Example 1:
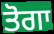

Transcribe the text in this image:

ਤੋਗਾ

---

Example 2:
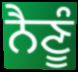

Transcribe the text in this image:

ਨੈਣੂੰ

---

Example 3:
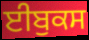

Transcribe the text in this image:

ਈਬੁਕਸ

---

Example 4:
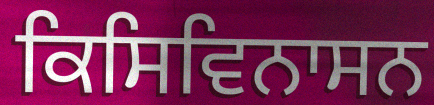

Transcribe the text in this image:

ਕਿਸਿਵਿਨਾਸਨ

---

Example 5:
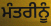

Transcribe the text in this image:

ਮੰਤਰੀਨੂੰ